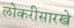
लोकरीसारखे